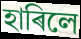
হাৰিলে